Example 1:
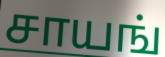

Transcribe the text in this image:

சாயங்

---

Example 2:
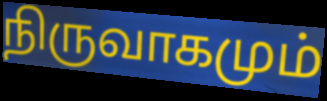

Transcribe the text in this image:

நிருவாகமும்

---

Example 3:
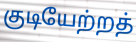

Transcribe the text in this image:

குடியேற்றத்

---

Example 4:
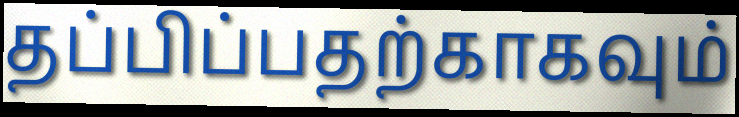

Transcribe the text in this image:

தப்பிப்பதற்காகவும்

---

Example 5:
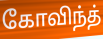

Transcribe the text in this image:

கோவிந்த்